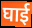
घाई